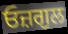
ਓਜ਼ਗੁਲ